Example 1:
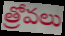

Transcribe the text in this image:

త్రోవలు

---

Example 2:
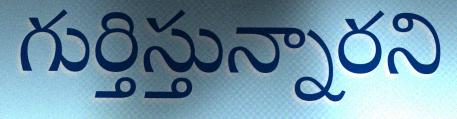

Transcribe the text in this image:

గుర్తిస్తున్నారని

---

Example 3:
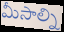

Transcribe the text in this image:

మీసాల్ని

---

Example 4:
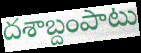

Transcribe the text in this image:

దశాబ్దంపాటు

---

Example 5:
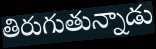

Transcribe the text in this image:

తిరుగుతున్నాడు